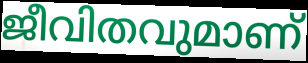
ജീവിതവുമാണ്